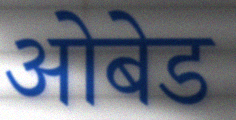
ओबेड